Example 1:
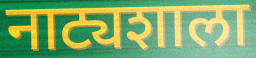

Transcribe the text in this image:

नाट्यशाला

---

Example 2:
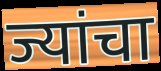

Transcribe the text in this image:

ज्यांचा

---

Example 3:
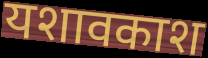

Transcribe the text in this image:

यशावकाश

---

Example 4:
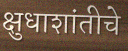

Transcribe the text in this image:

क्षुधाशांतीचे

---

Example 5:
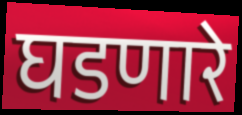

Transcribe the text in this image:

घडणारे